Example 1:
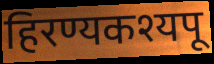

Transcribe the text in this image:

हिरण्यकश्यपू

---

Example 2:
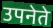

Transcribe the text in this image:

उपनेते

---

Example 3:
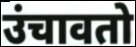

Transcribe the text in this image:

उंचावतो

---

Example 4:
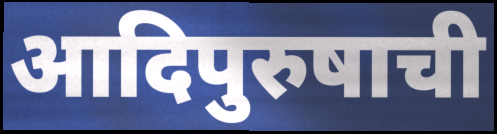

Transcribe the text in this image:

आदिपुरुषाची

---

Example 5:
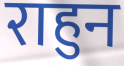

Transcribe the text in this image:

राहुन